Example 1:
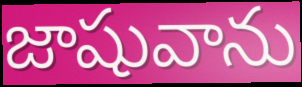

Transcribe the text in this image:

జాషువాను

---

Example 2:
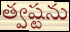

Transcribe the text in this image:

త్వష్టను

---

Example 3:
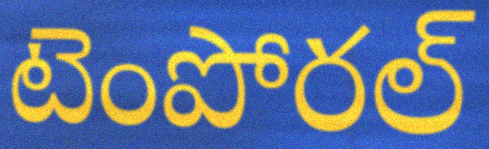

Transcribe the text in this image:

టెంపోరల్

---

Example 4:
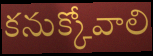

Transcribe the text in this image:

కనుక్కోవాలి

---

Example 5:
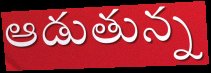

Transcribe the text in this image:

ఆడుతున్న